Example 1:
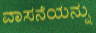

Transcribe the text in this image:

ವಾಸನೆಯನ್ನು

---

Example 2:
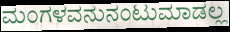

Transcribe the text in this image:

ಮಂಗಳವನುನಂಟುಮಾಡಲ್ಲ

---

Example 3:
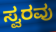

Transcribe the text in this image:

ಸ್ವರವು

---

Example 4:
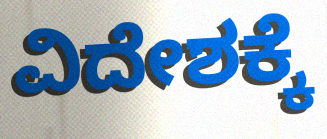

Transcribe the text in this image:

ವಿದೇಶಕ್ಕೆ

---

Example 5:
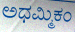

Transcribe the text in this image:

ಅಧಮ್ಮಿಕಂ